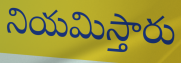
నియమిస్తారు